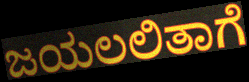
ಜಯಲಲಿತಾಗೆ